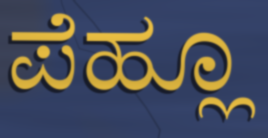
ಪೆಹ್ಲೂ